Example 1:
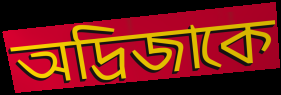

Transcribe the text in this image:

অদ্রিজাকে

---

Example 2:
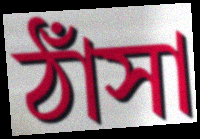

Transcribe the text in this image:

ঠাঁসা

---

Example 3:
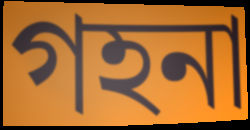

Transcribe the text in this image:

গহনা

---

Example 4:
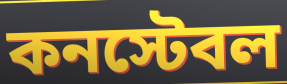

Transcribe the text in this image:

কনস্টেবল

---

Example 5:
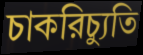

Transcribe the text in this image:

চাকরিচ্যুতি